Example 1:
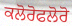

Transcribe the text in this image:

ਕਲੋਰੋਫਲੋਰੋ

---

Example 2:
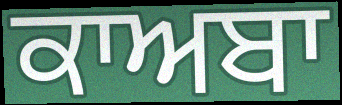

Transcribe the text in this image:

ਕਾਅਬਾ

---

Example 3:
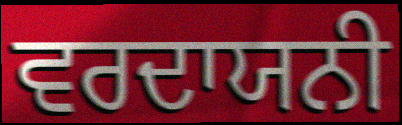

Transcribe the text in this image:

ਵਰਦਾਯਨੀ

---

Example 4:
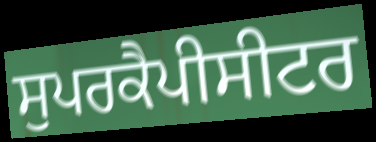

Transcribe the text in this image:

ਸੁਪਰਕੈਪੀਸੀਟਰ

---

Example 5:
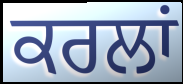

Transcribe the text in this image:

ਕਰਲਾਂ